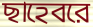
ছাহেবরে